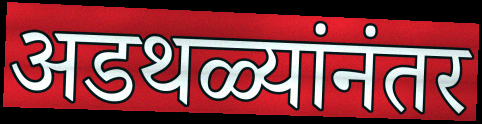
अडथळ्यांनंतर